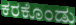
ಕರಕೊಂಡು